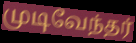
முடிவேந்தர்